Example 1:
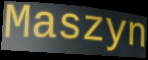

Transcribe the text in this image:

Maszyn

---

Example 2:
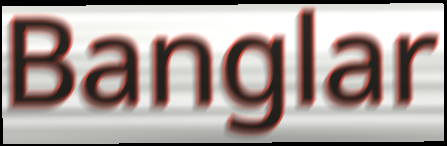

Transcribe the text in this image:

Banglar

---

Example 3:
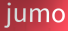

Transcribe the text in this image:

jumo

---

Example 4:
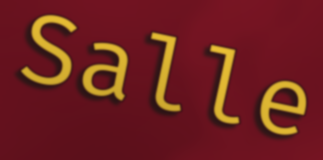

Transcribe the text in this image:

Salle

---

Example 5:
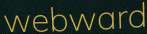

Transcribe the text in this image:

webward